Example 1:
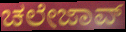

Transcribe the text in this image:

ಚಲೇಜಾವ್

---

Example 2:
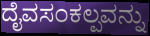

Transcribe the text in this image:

ದೈವಸಂಕಲ್ಪವನ್ನು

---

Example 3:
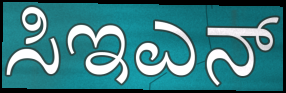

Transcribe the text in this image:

ಸಿಇಎನ್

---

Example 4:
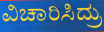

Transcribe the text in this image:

ವಿಚಾರಿಸಿದ್ರು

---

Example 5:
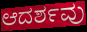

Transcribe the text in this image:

ಆದರ್ಶವು